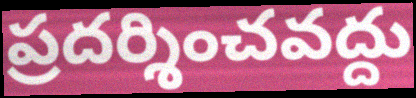
ప్రదర్శించవద్దు